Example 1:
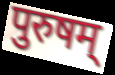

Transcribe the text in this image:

पुरुषम्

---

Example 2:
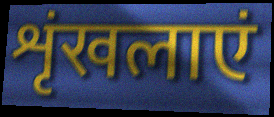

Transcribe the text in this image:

शृंखलाएं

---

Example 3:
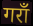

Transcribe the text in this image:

गराँ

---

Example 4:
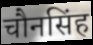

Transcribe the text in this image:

चौनसिंह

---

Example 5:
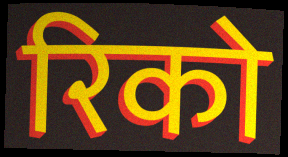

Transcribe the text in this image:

रिको